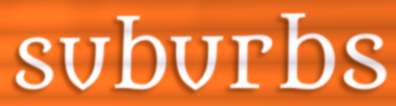
suburbs